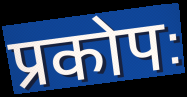
प्रकोपः